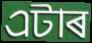
এটাৰ